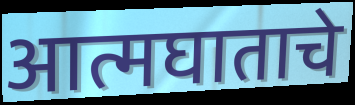
आत्मघाताचे